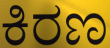
ಕಿರಣ